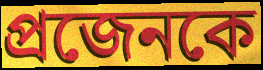
প্রজেনকে